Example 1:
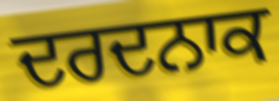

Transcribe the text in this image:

ਦਰਦਨਾਕ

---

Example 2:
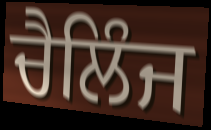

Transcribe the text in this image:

ਚੈਲਿੰਜ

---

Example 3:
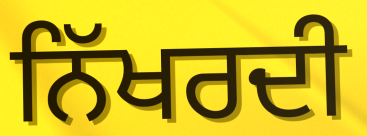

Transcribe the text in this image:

ਨਿੱਖਰਦੀ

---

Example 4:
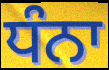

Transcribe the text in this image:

ਧੰਨਾ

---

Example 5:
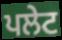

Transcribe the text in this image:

ਪਲੇਟ